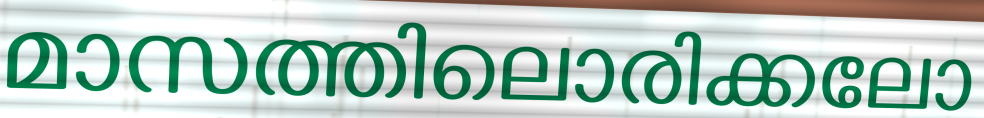
മാസത്തിലൊരിക്കലോ